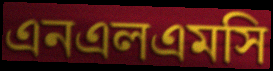
এনএলএমসি